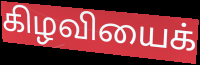
கிழவியைக்